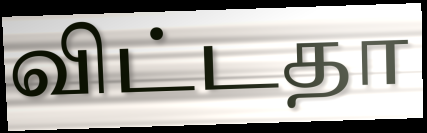
விட்டதா